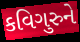
કવિગુરુને